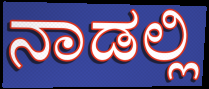
ನಾಡಲ್ಲಿ